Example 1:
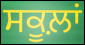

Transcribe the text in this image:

ਸਕੂਲ਼ਾਂ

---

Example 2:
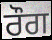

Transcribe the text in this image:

ਰੌਗ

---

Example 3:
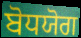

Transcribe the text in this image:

ਬੋਧਯੋਗ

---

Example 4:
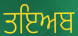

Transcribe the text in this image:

ਤਇਅਬ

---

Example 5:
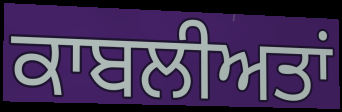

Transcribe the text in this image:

ਕਾਬਲੀਅਤਾਂ